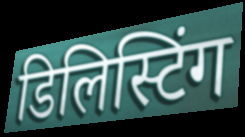
डिलिस्टिंग